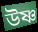
উষ্ণ